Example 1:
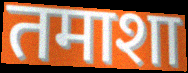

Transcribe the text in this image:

तमाशा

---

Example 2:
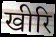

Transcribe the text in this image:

खीरि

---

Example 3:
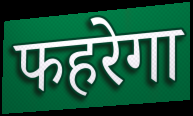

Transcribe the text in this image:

फहरेगा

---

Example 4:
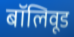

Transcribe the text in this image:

बॉलिवूड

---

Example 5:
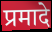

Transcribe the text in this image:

प्रमादे